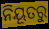
ନିୟୂତରୁ